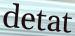
detat